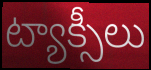
ట్యాక్సీలు